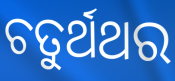
ଚତୁର୍ଥଥର